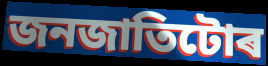
জনজাতিটোৰ